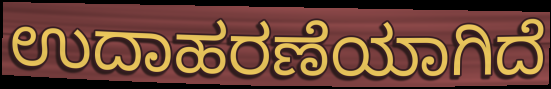
ಉದಾಹರಣೆಯಾಗಿದೆ